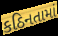
કઠિનતામાં